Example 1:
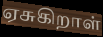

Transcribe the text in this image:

ஏசுகிறாள்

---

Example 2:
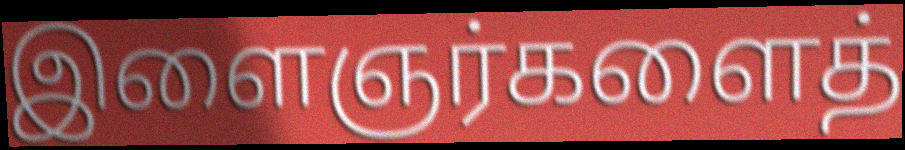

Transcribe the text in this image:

இளைஞர்களைத்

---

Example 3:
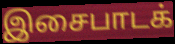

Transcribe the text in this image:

இசைபாடக்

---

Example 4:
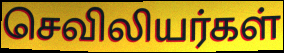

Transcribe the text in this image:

செவிலியர்கள்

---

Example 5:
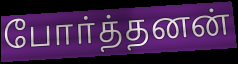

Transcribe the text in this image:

போர்த்தனன்